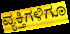
ವ್ಯಕ್ತಿಗಳಿಗೂ